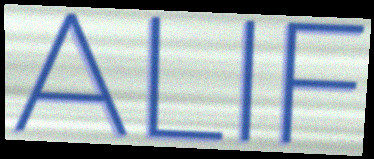
ALIF